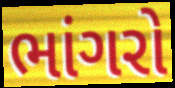
ભાંગરો